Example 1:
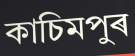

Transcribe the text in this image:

কাচিমপুৰ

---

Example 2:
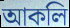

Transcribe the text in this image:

আকলি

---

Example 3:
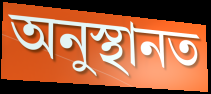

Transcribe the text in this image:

অনুস্থানত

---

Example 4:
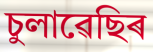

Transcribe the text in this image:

চুলাৱেছিৰ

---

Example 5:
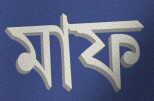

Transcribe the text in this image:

মাফ